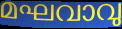
മഘവാവു